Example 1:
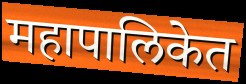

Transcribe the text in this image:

महापालिकेत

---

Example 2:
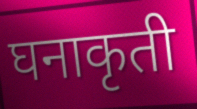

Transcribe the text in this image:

घनाकृती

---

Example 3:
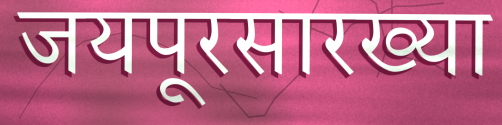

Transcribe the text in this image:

जयपूरसारख्या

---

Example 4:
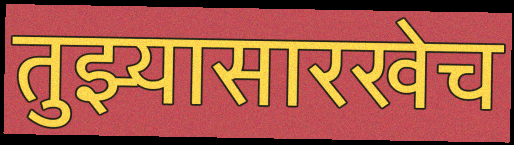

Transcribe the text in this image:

तुझ्यासारखेच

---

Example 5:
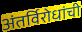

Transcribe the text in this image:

अंतर्विरोधांची